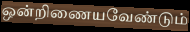
ஒன்றிணையவேண்டும்